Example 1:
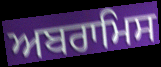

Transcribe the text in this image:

ਅਬਰਾਮਿਸ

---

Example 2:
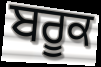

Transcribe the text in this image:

ਬਰੂਕ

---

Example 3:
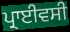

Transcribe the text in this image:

ਪ੍ਰਾਈਵਸੀ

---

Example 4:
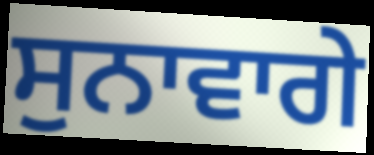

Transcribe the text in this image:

ਸੁਨਾਵਾਗੇ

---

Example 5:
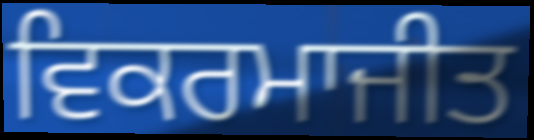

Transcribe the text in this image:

ਵਿਕਰਮਾਜੀਤ